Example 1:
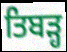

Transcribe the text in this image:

ਤਿਬੜ੍ਹ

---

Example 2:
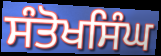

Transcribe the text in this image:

ਸੰਤੋਖਸਿੰਘ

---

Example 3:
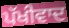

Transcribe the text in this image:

ਪੱਖੀਵਾਦ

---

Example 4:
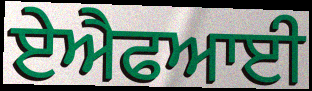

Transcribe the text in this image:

ਏਐਫਆਈ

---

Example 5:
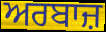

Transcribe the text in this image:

ਅਰਬਾਜ਼